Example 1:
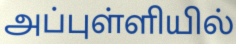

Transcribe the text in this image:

அப்புள்ளியில்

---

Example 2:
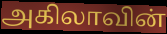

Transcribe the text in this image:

அகிலாவின்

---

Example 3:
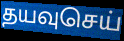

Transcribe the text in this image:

தயவுசெய்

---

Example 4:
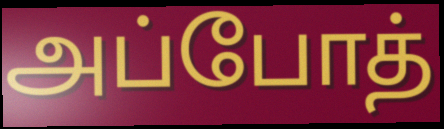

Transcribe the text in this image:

அப்போத்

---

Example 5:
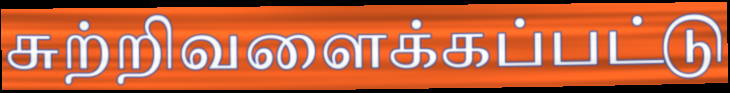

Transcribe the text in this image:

சுற்றிவளைக்கப்பட்டு